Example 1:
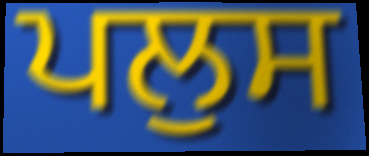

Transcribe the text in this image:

ਪਲੁਸ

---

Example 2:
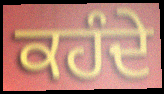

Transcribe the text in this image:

ਕਹੰਦੇ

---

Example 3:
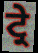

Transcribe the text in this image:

ਟ੍ਰੇ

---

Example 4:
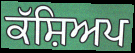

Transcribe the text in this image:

ਕੱਸ਼ਿਅਪ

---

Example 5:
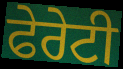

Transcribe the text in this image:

ਫੇਰੇਟੀ